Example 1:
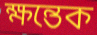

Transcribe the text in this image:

ক্ষন্তেক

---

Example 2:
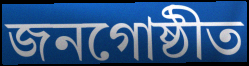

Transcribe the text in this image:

জনগোষ্ঠীত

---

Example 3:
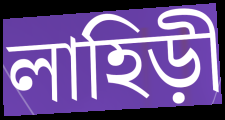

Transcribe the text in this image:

লাহিড়ী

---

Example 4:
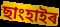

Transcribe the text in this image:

ছাংহাইৰ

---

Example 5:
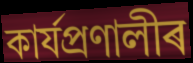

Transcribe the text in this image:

কাৰ্যপ্ৰণালীৰ